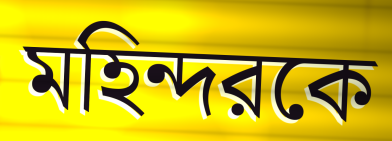
মহিন্দরকে